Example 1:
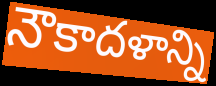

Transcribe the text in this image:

నౌకాదళాన్ని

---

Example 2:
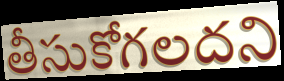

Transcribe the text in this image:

తీసుకోగలదని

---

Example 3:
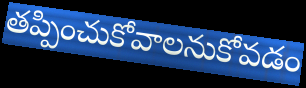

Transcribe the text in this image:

తప్పించుకోవాలనుకోవడం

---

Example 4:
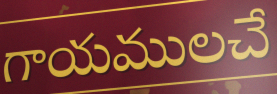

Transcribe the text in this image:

గాయములచే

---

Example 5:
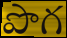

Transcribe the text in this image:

పొగ